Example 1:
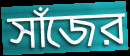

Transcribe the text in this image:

সাঁজের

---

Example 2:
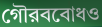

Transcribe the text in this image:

গৌরববোধও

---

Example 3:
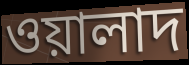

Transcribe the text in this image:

ওয়ালাদ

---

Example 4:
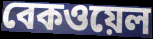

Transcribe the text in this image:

বেকওয়েল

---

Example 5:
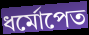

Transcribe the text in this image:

ধর্মোপেত